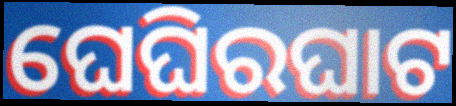
ଘେଘିରଘାଟ